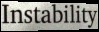
Instability